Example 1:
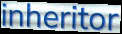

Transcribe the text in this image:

inheritor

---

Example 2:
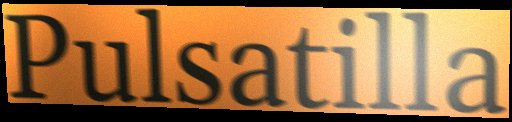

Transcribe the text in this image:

Pulsatilla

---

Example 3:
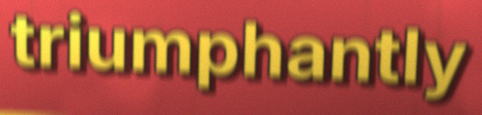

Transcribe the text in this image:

triumphantly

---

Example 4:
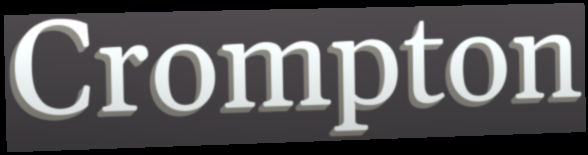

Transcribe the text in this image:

Crompton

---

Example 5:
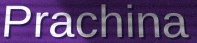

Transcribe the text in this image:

Prachina